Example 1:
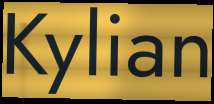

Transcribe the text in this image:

Kylian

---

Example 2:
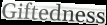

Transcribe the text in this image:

Giftedness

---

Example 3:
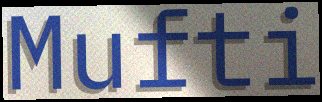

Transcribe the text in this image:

Mufti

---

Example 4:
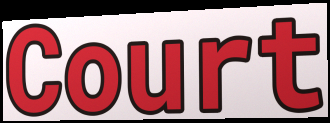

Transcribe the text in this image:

Court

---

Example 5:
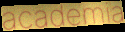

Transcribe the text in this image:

academia